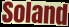
Soland